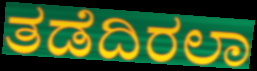
ತಡೆದಿರಲಾ